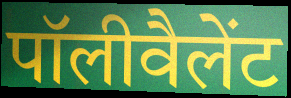
पॉलीवैलेंट